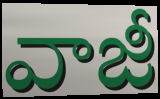
వాజీ